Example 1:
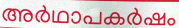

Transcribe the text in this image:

അർഥാപകർഷം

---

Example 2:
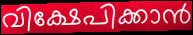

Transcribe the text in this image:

വിക്ഷേപിക്കാൻ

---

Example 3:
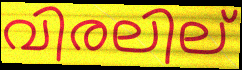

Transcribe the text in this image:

വിരലില്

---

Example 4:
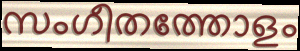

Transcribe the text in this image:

സംഗീതത്തോളം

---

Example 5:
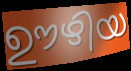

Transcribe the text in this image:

ഊഴിയ